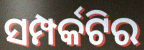
ସମ୍ପର୍କଟିର